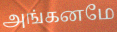
அங்கனமே